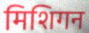
मिशिगन